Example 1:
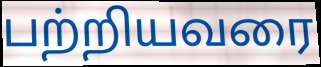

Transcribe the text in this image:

பற்றியவரை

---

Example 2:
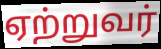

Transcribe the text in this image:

ஏற்றுவர்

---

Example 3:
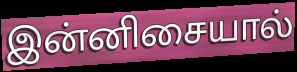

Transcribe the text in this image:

இன்னிசையால்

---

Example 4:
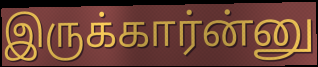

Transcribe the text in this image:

இருக்கார்ன்னு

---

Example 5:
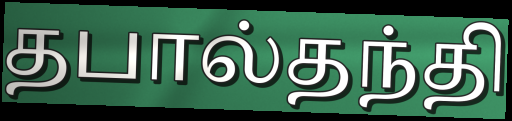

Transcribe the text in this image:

தபால்தந்தி